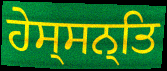
ਹੇਸ੍ਸਨ੍ਤਿ